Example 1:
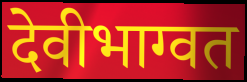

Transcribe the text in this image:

देवीभाग्वत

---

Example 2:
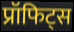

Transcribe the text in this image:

प्रॉफिट्स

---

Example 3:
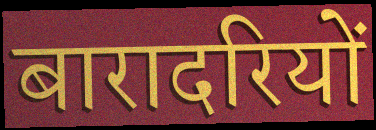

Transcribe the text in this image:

बारादरियों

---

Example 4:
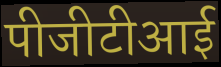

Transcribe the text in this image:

पीजीटीआई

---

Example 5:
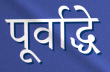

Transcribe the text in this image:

पूर्वाद्धे